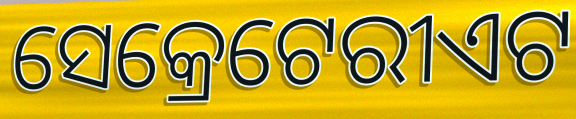
ସେକ୍ରେଟେରୀଏଟ